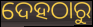
ଦେହଠାରୁ